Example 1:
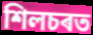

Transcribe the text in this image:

শিলচৰত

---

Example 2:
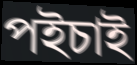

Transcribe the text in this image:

পইচাই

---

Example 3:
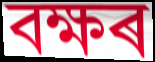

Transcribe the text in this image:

বক্ষৰ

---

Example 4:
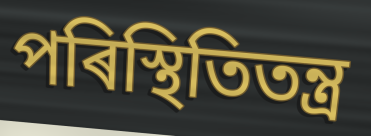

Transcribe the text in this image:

পৰিস্থিতিতন্ত্ৰ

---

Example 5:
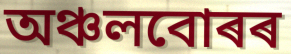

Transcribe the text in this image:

অঞ্চলবোৰৰ